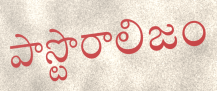
పాస్టొరాలిజం